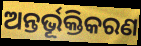
ଅନ୍ତର୍ଭୂକ୍ତିକରଣ